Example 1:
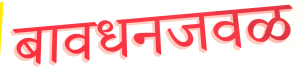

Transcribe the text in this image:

बावधनजवळ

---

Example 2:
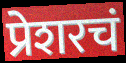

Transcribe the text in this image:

प्रेशरचं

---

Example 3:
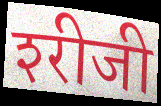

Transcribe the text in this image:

श्रीजी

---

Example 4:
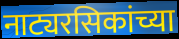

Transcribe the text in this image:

नाट्यरसिकांच्या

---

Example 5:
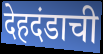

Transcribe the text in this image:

देहदंडाची